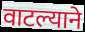
वाटल्याने